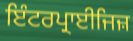
ਇੰਟਰਪ੍ਰਾਈਜਿਜ਼